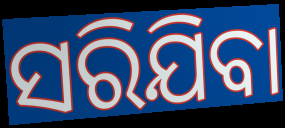
ସରିଯିବା